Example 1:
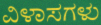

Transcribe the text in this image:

ವಿಳಾಸಗಳು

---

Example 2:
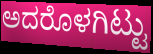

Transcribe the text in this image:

ಅದರೊಳಗಿಟ್ಟು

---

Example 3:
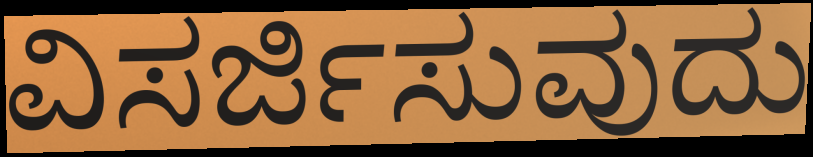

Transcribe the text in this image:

ವಿಸರ್ಜಿಸುವುದು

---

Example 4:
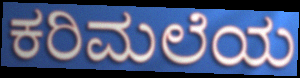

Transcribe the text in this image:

ಕರಿಮಲೆಯ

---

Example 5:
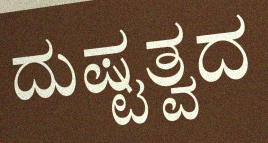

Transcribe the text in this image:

ದುಷ್ಟತ್ವದ